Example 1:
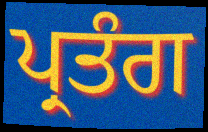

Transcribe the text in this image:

ਪ੍ਰਤੰਗ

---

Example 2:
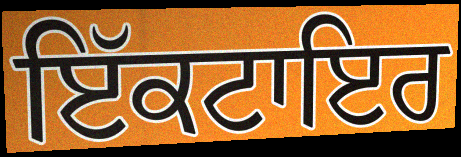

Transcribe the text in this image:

ਇੱਕਟਾਇਰ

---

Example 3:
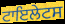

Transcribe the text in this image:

ਟਾਇਲੇਟਸ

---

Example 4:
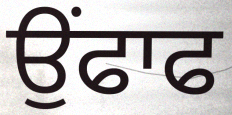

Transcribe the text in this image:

ਉੰਫਾਫ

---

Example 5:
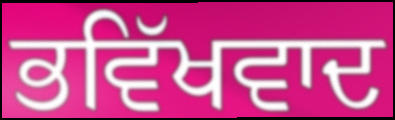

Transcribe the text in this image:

ਭਵਿੱਖਵਾਦ